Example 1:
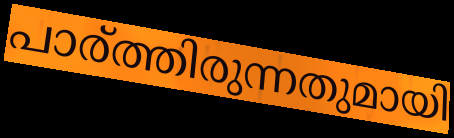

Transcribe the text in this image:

പാര്ത്തിരുന്നതുമായി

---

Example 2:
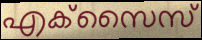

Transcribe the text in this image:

എക്‌സൈസ്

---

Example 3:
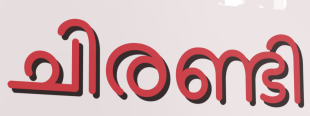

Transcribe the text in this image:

ചിരണ്ടി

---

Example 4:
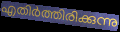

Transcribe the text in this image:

എതിർത്തിരിക്കുന്നു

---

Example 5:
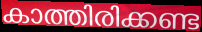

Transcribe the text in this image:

കാത്തിരിക്കണ്ട